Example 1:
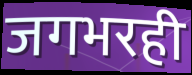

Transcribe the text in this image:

जगभरही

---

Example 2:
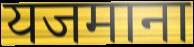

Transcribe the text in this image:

यजमाना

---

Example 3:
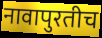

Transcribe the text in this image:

नावापुरतीच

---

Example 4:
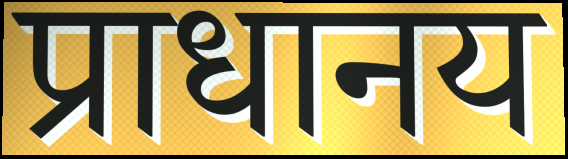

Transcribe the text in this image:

प्राधानय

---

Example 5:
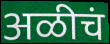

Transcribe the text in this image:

अळीचं